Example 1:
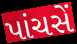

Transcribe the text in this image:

પાંચસેં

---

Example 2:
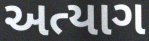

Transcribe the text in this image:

અત્યાગ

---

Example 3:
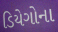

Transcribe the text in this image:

ડિયેગોના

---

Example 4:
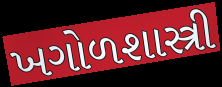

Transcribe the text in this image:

ખગોળશાસ્ત્રી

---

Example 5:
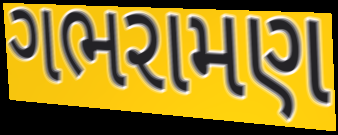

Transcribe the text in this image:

ગભરામણ